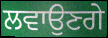
ਲਵਾਉਣਗੇ